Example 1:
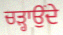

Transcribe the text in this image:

ਚੜ੍ਹਾਉਂਦੇ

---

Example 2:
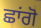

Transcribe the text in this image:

ਛਾਂਗੋ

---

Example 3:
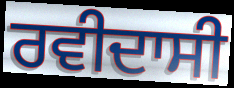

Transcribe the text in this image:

ਰਵੀਦਾਸੀ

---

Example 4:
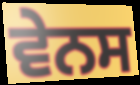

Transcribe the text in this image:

ਵੇਨਸ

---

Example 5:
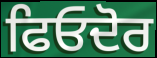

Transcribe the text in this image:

ਫਿਓਦੋਰ